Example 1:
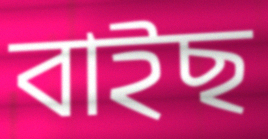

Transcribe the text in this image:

বাইছ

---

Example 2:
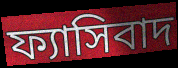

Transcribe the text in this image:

ফ্যাসিবাদ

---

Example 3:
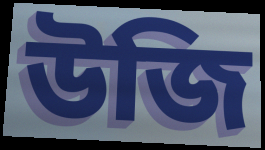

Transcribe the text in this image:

উজি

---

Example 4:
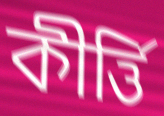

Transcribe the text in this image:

কীৰ্ত্তি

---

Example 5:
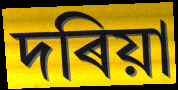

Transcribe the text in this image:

দৰিয়া